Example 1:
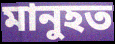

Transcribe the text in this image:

মানুহত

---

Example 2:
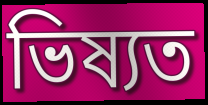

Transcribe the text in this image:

ভিষ্যত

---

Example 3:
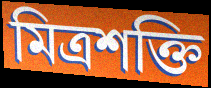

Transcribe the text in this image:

মিত্ৰশক্তি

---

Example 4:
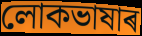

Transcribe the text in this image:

লোকভাষাৰ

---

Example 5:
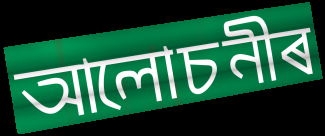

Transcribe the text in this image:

আলোচনীৰ